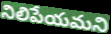
నిలిపేయమని